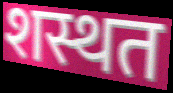
शस्थत